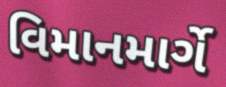
વિમાનમાર્ગે